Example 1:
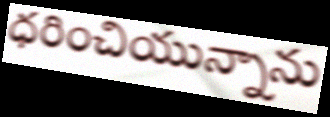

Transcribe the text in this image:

ధరించియున్నాను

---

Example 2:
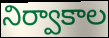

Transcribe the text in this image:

నిర్వాకాల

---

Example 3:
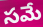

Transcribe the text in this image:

సమే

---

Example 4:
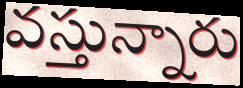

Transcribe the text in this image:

వస్తున్నారు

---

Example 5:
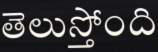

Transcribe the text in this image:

తెలుస్తోంది